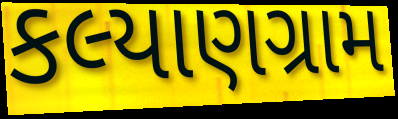
કલ્યાણગ્રામ